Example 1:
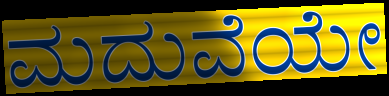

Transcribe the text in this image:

ಮದುವೆಯೇ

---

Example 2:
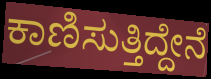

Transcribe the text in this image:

ಕಾಣಿಸುತ್ತಿದ್ದೇನೆ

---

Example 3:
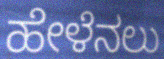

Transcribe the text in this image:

ಹೇಳೆನಲು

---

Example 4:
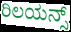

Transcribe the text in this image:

ರಿಲಯನ್ಸ್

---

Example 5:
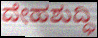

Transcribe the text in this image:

ದೇಹಶುದ್ಧಿ